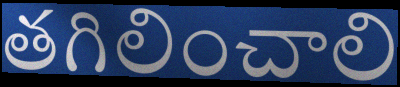
తగిలించాలి